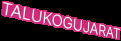
TALUKOGUJARAT